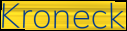
Kroneck